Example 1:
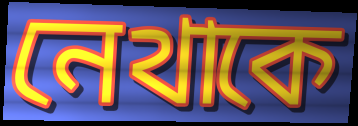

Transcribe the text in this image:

নেথাকে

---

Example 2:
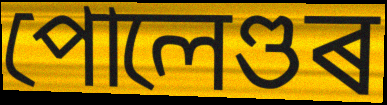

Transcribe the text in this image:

পোলেণ্ডৰ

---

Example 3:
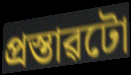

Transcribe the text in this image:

প্ৰস্তাৱটো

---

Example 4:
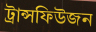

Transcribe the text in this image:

ট্ৰান্সফিউজন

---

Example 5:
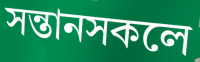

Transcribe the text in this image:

সন্তানসকলে